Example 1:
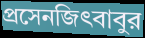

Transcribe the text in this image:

প্রসেনজিৎবাবুর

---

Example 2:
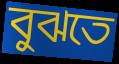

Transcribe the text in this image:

বুঝতে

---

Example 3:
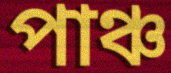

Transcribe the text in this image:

পাঞ্চ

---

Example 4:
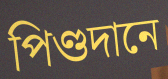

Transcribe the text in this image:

পিণ্ডদানে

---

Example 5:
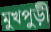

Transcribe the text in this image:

মুখপুড়ী